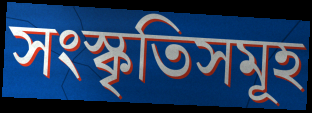
সংস্কৃতিসমূহ